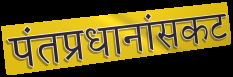
पंतप्रधानांसकट